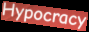
Hypocracy